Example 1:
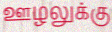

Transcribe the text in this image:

ஊழலுக்கு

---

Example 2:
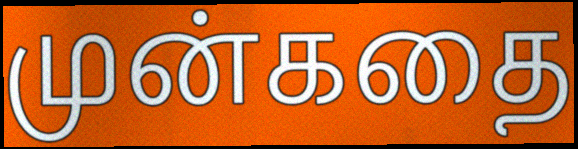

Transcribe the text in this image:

முன்கதை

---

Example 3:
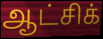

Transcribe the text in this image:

ஆட்சிக்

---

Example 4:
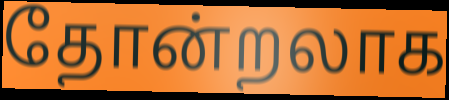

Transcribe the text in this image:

தோன்றலாக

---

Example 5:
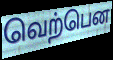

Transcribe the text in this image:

வெற்பென